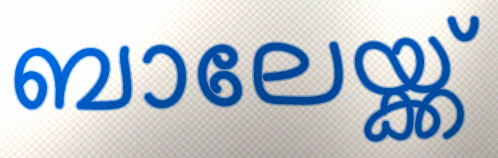
ബാലേയ്ക്ക്